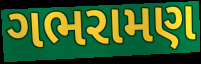
ગભરામણ